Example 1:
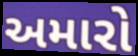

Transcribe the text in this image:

અમારો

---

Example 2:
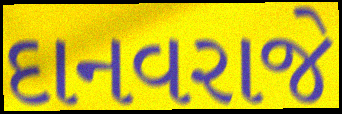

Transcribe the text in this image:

દાનવરાજે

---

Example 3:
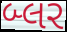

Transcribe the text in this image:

બ્લર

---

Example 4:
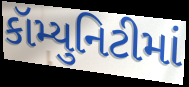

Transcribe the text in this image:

કૉમ્યુનિટીમાં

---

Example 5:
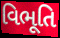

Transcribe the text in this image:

વિભૂતિ